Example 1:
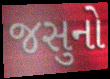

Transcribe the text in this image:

જસુનો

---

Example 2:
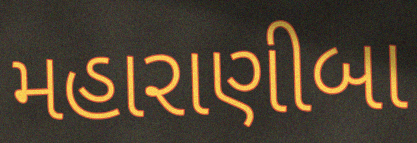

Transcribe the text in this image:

મહારાણીબા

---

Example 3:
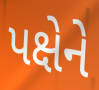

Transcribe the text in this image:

પક્ષેને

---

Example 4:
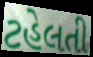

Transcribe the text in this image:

ટહેલતી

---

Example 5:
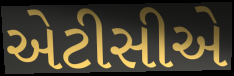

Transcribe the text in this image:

એટીસીએ